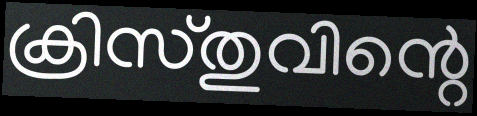
ക്രിസ്തുവിന്റെ